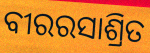
ବୀରରସାଶ୍ରିତ